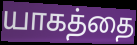
யாகத்தை